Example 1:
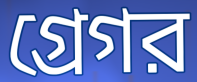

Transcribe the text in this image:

গ্রেগর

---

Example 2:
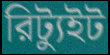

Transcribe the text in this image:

রিট্যুইট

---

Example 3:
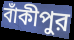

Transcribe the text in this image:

বাঁকীপুর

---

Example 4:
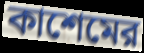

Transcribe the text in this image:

কাশেমের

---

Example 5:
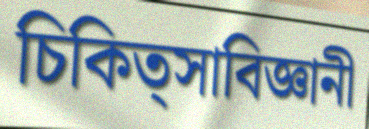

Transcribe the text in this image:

চিকিত্সাবিজ্ঞানী